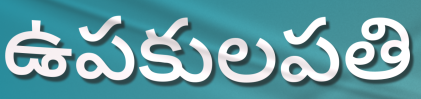
ఉపకులపతి